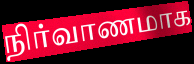
நிர்வாணமாக